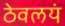
ठेवलयं